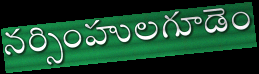
నర్సింహులగూడెం